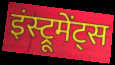
इंस्‍ट्रूमेंट्स